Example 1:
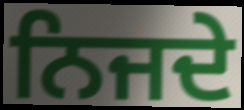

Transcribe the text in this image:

ਨਿਜਦੇ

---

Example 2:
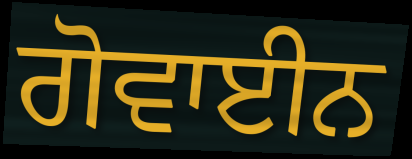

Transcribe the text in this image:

ਗੋਵਾਈਨ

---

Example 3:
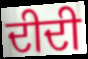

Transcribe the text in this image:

ਦੀਦੀ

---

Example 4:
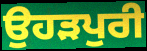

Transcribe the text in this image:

ਉਹੜਪੁਰੀ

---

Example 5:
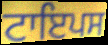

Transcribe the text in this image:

ਟਾਇਪਸ